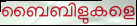
ബൈബിളുകളെ